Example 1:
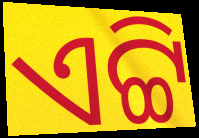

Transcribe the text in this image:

ଏଟ୍ଟି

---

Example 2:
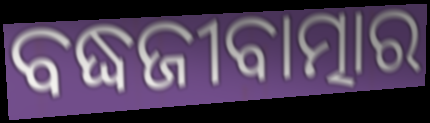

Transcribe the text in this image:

ବଦ୍ଧଜୀବାତ୍ମାର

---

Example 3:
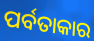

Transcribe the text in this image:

ପର୍ବତାକାର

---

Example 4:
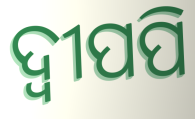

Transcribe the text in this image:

ଦ୍ବୀପପି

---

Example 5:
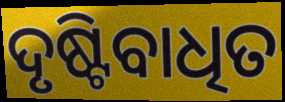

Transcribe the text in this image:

ଦୃଷ୍ଟିବାଧିତ